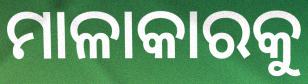
ମାଳାକାରକୁ